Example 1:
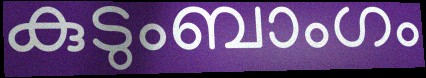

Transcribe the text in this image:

കുടുംബാംഗം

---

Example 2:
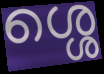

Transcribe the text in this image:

ശ്ശെ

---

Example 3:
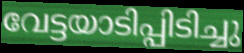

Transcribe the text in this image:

വേട്ടയാടിപ്പിടിച്ചു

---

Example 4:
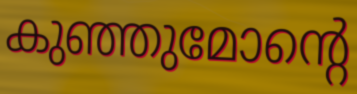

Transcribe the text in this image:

കുഞ്ഞുമോന്റെ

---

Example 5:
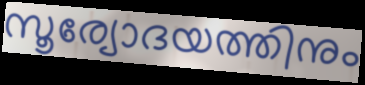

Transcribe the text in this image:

സൂര്യോദയത്തിനും